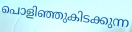
പൊളിഞ്ഞുകിടക്കുന്ന